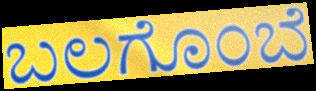
ಬಲಗೊಂಬೆ